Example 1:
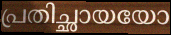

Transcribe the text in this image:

പ്രതിച്ഛായയോ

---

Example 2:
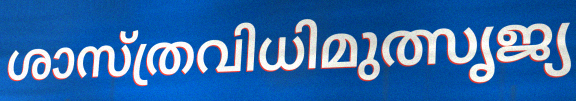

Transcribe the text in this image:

ശാസ്ത്രവിധിമുത്സൃജ്യ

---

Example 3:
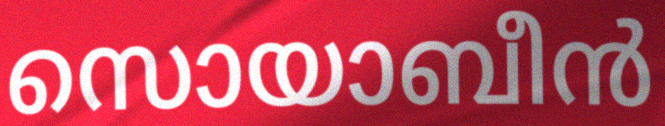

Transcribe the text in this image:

സൊയാബീൻ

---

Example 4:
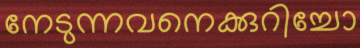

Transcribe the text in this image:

നേടുന്നവനെക്കുറിച്ചോ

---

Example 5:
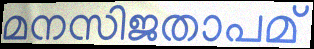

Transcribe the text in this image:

മനസിജതാപമ്